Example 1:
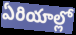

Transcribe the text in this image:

ఏరియాల్లో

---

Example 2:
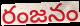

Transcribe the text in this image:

రంజనం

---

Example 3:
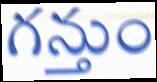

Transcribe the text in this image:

గన్తుం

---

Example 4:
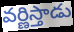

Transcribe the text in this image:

వర్ణిస్తాడు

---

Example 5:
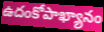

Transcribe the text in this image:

ఉదంకోపాఖ్యానం